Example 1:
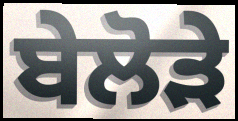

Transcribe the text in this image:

ਬੇਲੋੜੇ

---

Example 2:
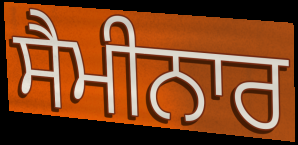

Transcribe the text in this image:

ਸੈਮੀਨਾਰ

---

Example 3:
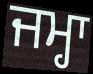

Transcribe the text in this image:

ਜਮ੍ਹਾ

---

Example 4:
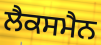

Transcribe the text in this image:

ਲੈਕਸਮੈਨ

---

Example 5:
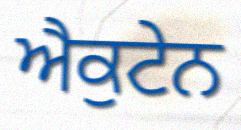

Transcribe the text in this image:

ਐਕੁਟੇਨ